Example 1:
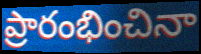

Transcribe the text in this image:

ప్రారంభించినా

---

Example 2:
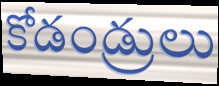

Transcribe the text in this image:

కోడండ్రులు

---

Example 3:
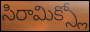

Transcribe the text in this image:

సిరామిక్స్లో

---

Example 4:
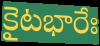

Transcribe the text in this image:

కైటభారేః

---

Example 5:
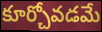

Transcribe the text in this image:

కూర్చోవడమే